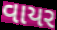
વાયર